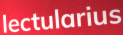
lectularius